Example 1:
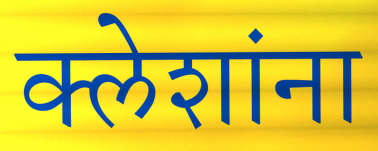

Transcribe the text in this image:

क्लेशांना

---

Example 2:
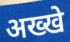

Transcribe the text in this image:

अख्खे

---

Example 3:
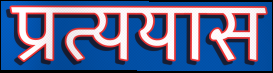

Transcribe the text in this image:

प्रत्ययास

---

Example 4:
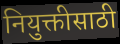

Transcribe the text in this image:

नियुक्तीसाठी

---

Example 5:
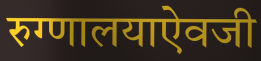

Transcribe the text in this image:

रुग्णालयाऐवजी